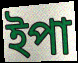
ইপা